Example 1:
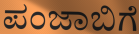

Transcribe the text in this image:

ಪಂಜಾಬಿಗೆ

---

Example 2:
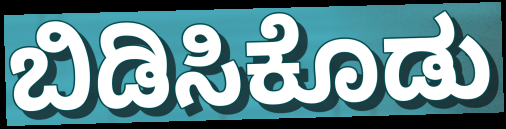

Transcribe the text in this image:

ಬಿಡಿಸಿಕೊಡು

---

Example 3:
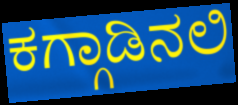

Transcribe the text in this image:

ಕಗ್ಗಾಡಿನಲಿ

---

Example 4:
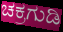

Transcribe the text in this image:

ಚಕ್ರಗುಡಿ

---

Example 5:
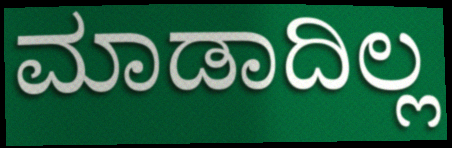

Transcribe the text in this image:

ಮಾಡಾದಿಲ್ಲ